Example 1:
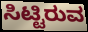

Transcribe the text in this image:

ಸಿಟ್ಟಿರುವ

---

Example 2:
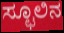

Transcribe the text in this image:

ಸ್ಟೂಲಿನ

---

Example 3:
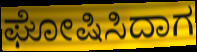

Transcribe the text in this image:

ಘೋಷಿಸಿದಾಗ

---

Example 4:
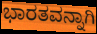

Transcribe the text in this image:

ಭಾರತವನ್ನಾಗಿ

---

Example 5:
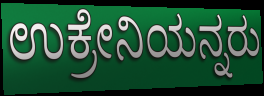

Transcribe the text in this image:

ಉಕ್ರೇನಿಯನ್ನರು